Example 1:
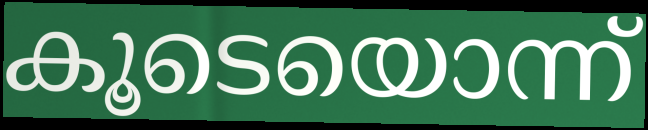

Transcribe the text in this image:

കൂടെയൊന്ന്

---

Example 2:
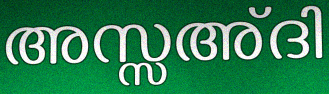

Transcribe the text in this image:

അസ്സഅ്ദി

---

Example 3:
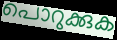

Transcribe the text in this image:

പൊറുക്കുക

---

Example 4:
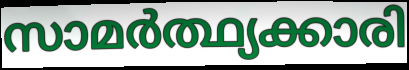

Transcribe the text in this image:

സാമർത്ഥ്യക്കാരി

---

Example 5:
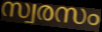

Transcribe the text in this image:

സ്വരസം